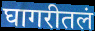
घागरीतलं